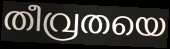
തീവ്രതയെ